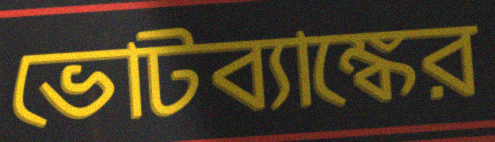
ভোটব্যাঙ্কের